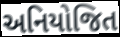
અનિયોજિત